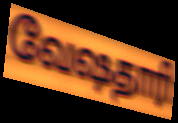
வேஷதாரி